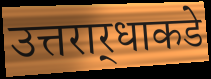
उत्तरार्धाकडे